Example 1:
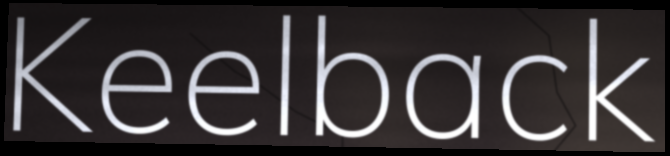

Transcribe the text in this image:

Keelback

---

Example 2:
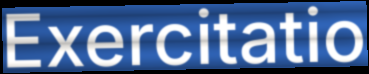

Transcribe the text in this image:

Exercitatio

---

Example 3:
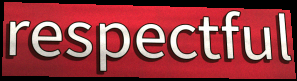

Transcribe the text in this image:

respectful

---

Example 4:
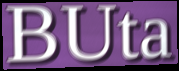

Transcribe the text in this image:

BUta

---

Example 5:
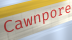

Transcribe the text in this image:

Cawnpore